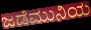
ಜಡೆಮುನಿಯ